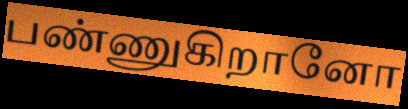
பண்ணுகிறானோ